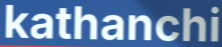
kathanchi